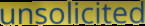
unsolicited